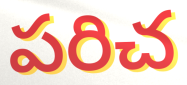
పరిచ